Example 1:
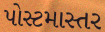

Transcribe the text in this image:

પોસ્ટમાસ્તર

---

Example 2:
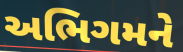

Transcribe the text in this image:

અભિગમને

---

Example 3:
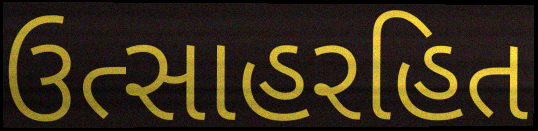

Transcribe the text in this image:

ઉત્સાહરહિત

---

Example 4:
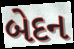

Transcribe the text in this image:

બેદન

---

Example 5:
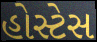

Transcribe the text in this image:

હોસ્ટેસ